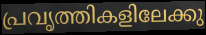
പ്രവൃത്തികളിലേക്കു